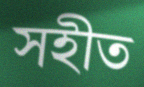
সহীত